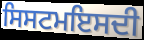
ਸਿਸਟਮਇਸਦੀ